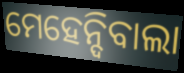
ମେହେନ୍ଦିବାଲା